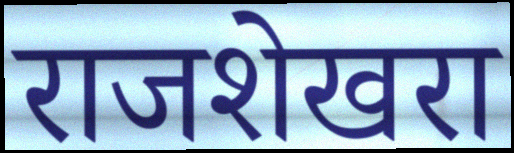
राजशेखरा